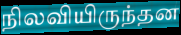
நிலவியிருந்தன